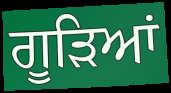
ਗੂੜਿਆਂ